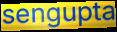
sengupta